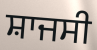
ਸ਼ਾਜਸੀ